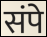
संपे